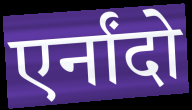
एर्नांदो